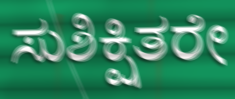
ಸುಶಿಕ್ಷಿತರೇ